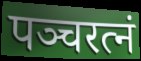
पञ्चरत्नं